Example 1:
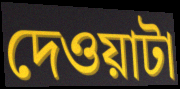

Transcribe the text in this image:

দেওয়াটা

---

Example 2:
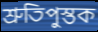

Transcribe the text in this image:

শ্রুতিপুস্তক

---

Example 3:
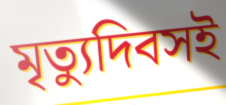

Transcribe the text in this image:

মৃত্যুদিবসই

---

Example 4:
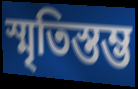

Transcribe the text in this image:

স্মৃতিস্তম্ভ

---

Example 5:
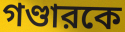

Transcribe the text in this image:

গণ্ডারকে